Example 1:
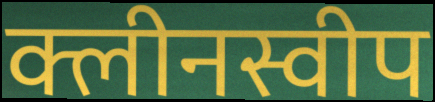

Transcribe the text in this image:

क्लीनस्वीप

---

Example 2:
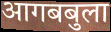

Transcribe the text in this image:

आगबबुला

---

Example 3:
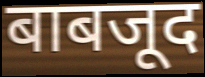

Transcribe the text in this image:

बाबजूद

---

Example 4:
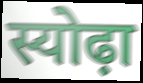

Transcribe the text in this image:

स्योढ़ा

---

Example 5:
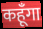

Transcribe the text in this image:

कहूँगा